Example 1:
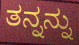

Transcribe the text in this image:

ತನ್ನನ್ನು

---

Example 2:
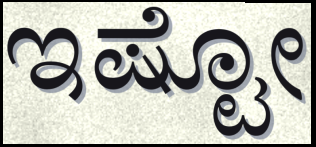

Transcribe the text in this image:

ಇಷ್ಟೋ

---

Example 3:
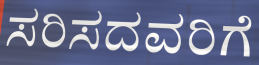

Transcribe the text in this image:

ಸರಿಸದವರಿಗೆ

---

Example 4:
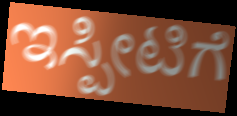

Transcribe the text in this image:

ಇಸ್ಪೀಟಿಗೆ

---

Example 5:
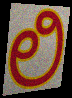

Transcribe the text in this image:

ಲಿ